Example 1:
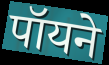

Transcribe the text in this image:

पॉयने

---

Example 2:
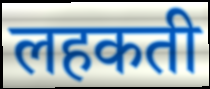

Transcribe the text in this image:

लहकती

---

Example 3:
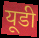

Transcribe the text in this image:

यूडी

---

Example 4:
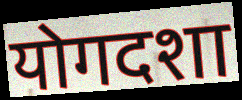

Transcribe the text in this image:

योगदशा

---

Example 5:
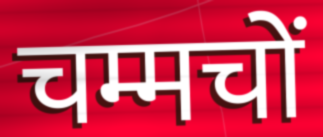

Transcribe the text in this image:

चम्मचों